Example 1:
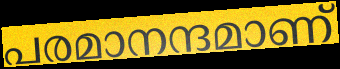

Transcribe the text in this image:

പരമാനന്ദമാണ്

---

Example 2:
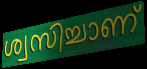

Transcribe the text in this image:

ശ്വസിച്ചാണ്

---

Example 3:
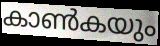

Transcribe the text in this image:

കാൺകയും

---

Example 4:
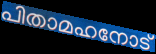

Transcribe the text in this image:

പിതാമഹനോട്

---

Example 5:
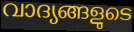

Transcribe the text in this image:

വാദ്യങ്ങളുടെ